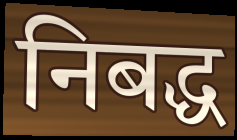
निबद्ध